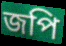
জপি